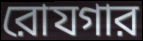
রোযগার